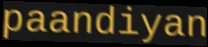
paandiyan